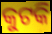
କୁଟକି